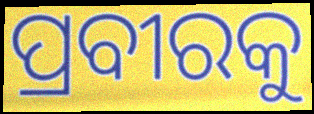
ପ୍ରବୀରକୁ